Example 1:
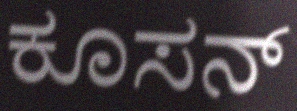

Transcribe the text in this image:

ಕೂಸನ್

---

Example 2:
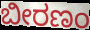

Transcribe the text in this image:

ಬೀರಣಂ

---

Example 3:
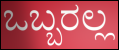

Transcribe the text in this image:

ಒಬ್ಬರಲ್ಲ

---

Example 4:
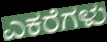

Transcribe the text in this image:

ಎಕರೆಗಳು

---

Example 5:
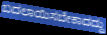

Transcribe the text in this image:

ಬದಲಾಯಿಸಬೇಕಾದದ್ದು